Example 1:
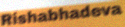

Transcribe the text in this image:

Rishabhadeva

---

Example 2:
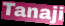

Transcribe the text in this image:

Tanaji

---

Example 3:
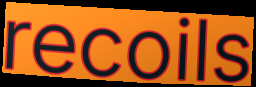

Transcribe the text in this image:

recoils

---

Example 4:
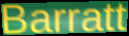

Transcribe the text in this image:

Barratt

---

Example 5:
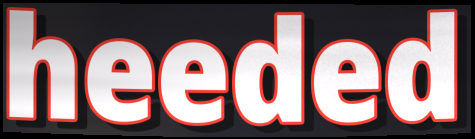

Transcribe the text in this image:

heeded